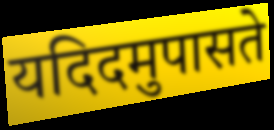
यदिदमुपासते